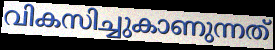
വികസിച്ചുകാണുന്നത്